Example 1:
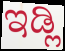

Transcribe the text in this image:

ಇಡ್ಲಿ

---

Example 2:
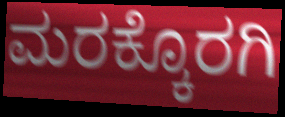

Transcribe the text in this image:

ಮರಕ್ಕೊರಗಿ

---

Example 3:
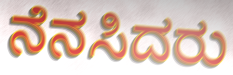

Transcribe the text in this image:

ನೆನಸಿದರು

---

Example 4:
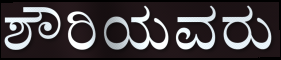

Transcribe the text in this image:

ಶೌರಿಯವರು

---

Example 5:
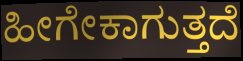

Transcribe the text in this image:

ಹೀಗೇಕಾಗುತ್ತದೆ